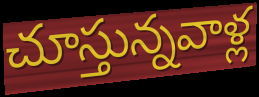
చూస్తున్నవాళ్ల